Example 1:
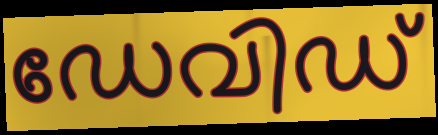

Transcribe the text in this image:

ഡേവിഡ്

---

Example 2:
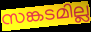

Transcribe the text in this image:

സങ്കടമില്ല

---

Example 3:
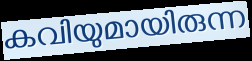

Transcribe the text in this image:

കവിയുമായിരുന്ന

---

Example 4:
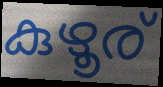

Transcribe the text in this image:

കുഴൂര്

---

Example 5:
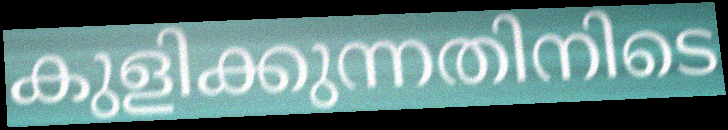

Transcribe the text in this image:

കുളിക്കുന്നതിനിടെ